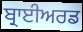
ਬ੍ਰਾਈਅਰਡ